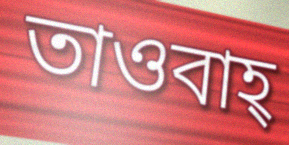
তাওবাহ্